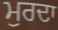
ਮੁਰਦਾ